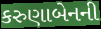
કરુણાબેનની